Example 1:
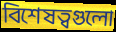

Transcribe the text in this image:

বিশেষত্বগুলো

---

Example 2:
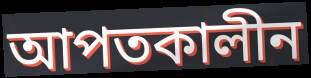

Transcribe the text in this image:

আপতকালীন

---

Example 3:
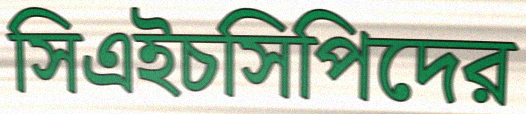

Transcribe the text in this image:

সিএইচসিপিদের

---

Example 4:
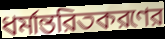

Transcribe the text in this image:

ধর্মান্তরিতকরণের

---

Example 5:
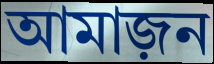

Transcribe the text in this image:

আমাজ়ন